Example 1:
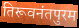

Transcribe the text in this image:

तिरूवनंतपुरम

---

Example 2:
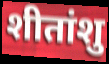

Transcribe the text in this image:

शीतांशु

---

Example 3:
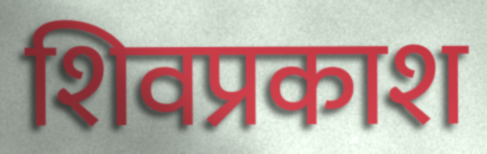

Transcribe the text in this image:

शिवप्रकाश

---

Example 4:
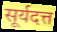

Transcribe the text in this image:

सूर्यदत्त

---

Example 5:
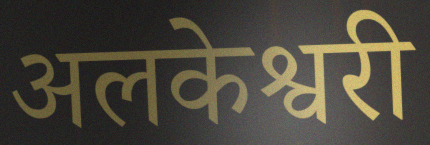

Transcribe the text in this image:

अलकेश्वरी